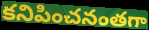
కనిపించనంతగా